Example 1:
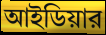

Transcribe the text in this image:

আইডিয়ার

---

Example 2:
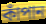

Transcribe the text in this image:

কাঁপান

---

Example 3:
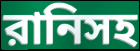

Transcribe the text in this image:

রানিসহ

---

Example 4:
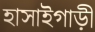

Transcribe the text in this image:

হাসাইগাড়ী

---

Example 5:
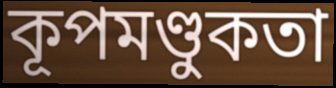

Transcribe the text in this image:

কূপমণ্ডুকতা